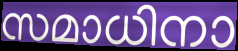
സമാധിനാ